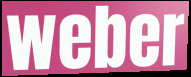
weber